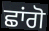
ਛਾਂਗੋ